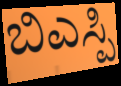
ಬಿಎಸ್ಪಿ